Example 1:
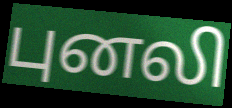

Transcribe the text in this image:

புனலி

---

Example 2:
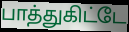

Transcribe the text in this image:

பாத்துகிட்டே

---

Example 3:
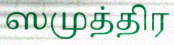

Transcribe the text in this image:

ஸமுத்திர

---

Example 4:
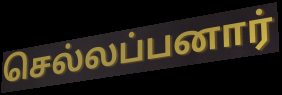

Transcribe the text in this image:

செல்லப்பனார்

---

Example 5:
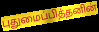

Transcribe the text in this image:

புதுமைப்பித்தனின்